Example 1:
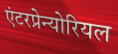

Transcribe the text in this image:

एंटरप्रेन्योरियल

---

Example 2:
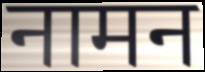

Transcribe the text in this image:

नामन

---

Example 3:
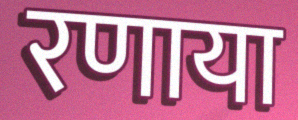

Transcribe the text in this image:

रणाया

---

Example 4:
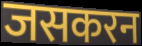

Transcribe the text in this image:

जसकरन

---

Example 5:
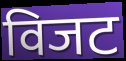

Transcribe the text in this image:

विजट